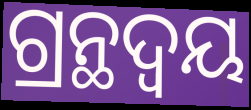
ଗ୍ରନ୍ଥଦ୍ଵୟ